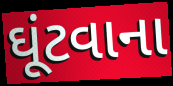
ઘૂંટવાના